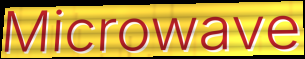
Microwave